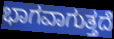
ಭಾಗವಾಗುತ್ತದೆ